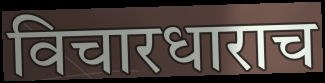
विचारधाराच